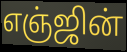
எஞ்ஜின்